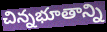
చిన్నభూతాన్ని